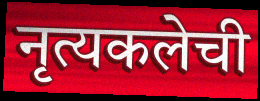
नृत्यकलेची